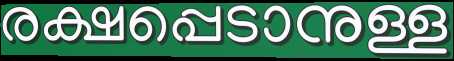
രക്ഷപ്പെടാനുള്ള